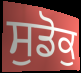
ਸੁਡੋਕੁ